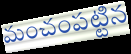
మంచంపట్టిన